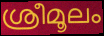
ശ്രീമൂലം